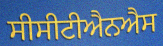
ਸੀਸੀਟੀਐਨਐਸ